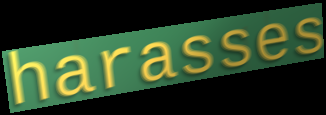
harasses